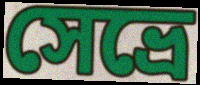
সেভ্রে